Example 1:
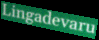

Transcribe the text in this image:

Lingadevaru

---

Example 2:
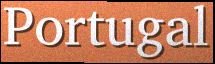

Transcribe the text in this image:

Portugal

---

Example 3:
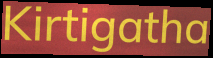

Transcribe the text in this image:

Kirtigatha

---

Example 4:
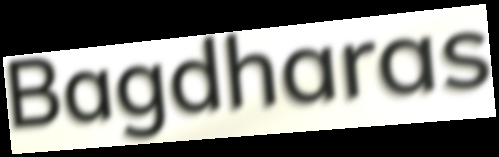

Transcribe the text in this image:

Bagdharas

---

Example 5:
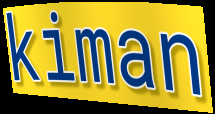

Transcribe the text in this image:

kiman